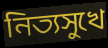
নিত্যসুখে